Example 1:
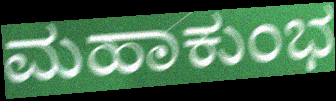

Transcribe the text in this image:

ಮಹಾಕುಂಭ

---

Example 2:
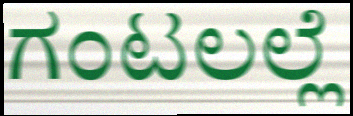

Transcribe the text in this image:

ಗಂಟಲಲ್ಲೆ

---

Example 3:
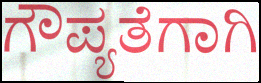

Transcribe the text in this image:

ಗೌಪ್ಯತೆಗಾಗಿ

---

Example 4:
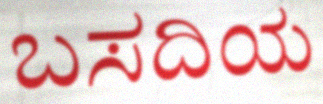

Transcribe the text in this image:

ಬಸದಿಯ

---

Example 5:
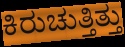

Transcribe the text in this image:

ಕಿರುಚುತ್ತಿತ್ತು